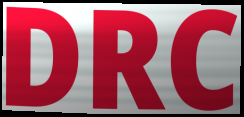
DRC